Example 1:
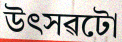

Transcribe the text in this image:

উৎসৱটো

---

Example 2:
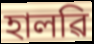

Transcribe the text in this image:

হালৱি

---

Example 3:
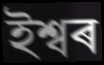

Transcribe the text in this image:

ইশ্বৰ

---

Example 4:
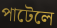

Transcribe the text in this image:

পাটেলে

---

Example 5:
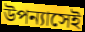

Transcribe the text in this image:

উপন্যাসেই